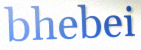
bhebei